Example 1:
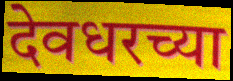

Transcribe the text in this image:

देवधरच्या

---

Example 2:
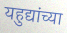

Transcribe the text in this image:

यहुद्यांच्या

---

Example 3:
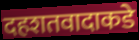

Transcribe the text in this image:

दहशतवादाकडे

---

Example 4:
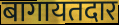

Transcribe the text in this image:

बागायतदार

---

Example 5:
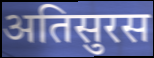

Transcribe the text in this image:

अतिसुरस